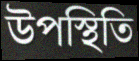
উপস্থিতি